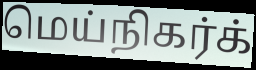
மெய்நிகர்க்